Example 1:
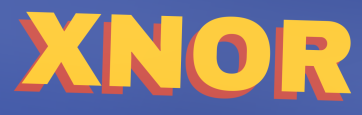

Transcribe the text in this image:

XNOR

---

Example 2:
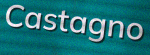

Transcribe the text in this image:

Castagno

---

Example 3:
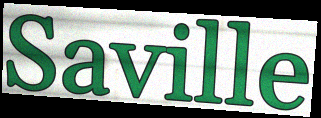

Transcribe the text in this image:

Saville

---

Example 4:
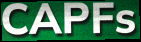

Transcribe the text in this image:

CAPFs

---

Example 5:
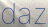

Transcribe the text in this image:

daz